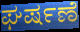
ಘರ್ಷಣೆ